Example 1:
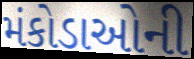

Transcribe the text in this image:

મંકોડાઓની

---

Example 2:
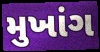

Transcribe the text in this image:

મુખાંગ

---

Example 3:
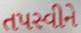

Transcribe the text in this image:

તપસ્વીને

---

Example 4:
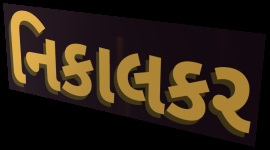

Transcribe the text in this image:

નિકાલકર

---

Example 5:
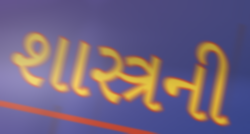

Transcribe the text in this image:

શાસ્ત્રની